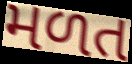
મળત